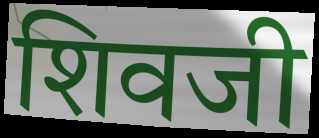
शिवजी